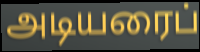
அடியரைப்